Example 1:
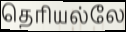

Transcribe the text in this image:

தெரியல்லே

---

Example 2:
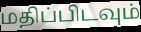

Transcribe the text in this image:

மதிப்பிடவும்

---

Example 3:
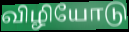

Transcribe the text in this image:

விழியோடு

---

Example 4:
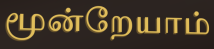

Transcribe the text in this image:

மூன்றேயாம்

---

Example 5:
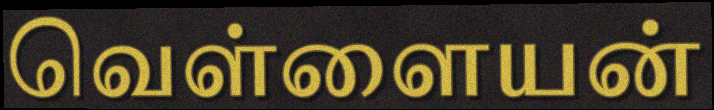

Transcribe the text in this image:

வெள்ளையன்